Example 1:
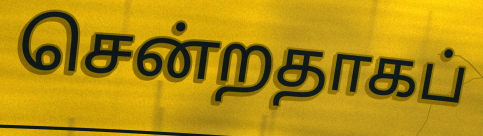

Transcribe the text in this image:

சென்றதாகப்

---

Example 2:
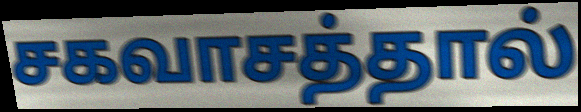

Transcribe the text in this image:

சகவாசத்தால்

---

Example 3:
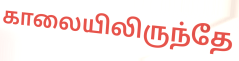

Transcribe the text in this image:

காலையிலிருந்தே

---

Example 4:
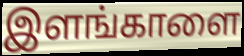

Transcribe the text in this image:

இளங்காளை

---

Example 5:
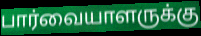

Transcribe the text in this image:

பார்வையாளருக்கு